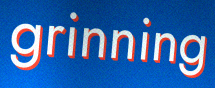
grinning